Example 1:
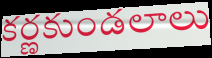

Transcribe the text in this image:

కర్ణకుండలాలు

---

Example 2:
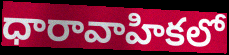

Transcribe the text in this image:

ధారావాహికలో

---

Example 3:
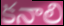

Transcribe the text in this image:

కనాలి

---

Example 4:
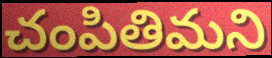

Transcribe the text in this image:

చంపితిమని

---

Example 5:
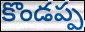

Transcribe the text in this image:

కొండప్ప